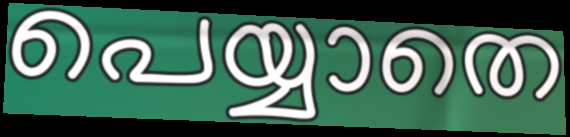
പെയ്യാതെ